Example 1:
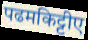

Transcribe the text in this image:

पढमकिट्टीए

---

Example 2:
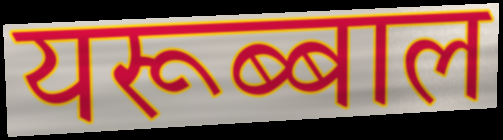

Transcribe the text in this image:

यरूब्बाल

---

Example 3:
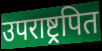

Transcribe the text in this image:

उपराष्ट्रपित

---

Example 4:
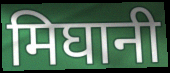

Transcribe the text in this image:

मिघानी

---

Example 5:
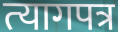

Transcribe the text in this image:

त्‍यागपत्र